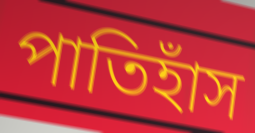
পাতিহাঁস